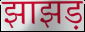
झाझड़